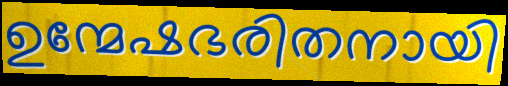
ഉന്മേഷഭരിതനായി